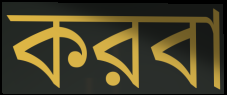
করবা